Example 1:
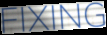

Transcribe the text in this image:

FIXING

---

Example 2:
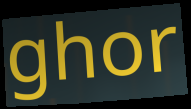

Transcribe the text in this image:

ghor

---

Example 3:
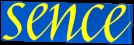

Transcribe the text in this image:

sence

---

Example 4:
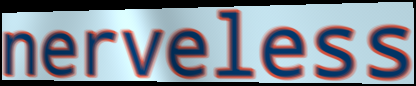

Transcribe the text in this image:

nerveless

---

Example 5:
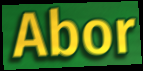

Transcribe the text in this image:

Abor